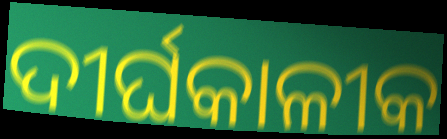
ଦୀର୍ଘକାଳୀକ